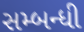
સમ્બન્ધી